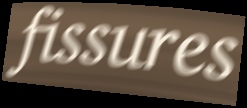
fissures